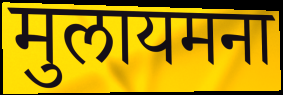
मुलायमना